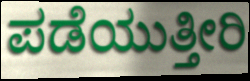
ಪಡೆಯುತ್ತೀರಿ